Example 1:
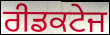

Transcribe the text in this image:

ਰੀਡਕਟੇਜ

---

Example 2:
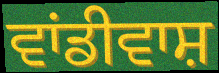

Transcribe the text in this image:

ਵਾਂਡੀਵਾਸ਼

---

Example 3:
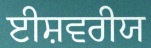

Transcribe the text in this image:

ਈਸ਼ਵਰੀਯ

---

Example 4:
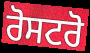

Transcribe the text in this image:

ਰੋਸਟਰੋ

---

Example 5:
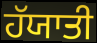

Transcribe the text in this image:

ਹੱਯਾਤੀ